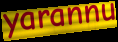
yarannu